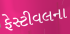
ફેસ્ટીવલના